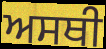
ਅਸਥੀ